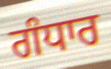
ਗੰਧਾਰ